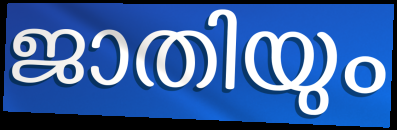
ജാതിയും